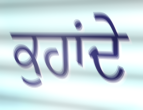
ਕੁਹਾਂਦੇ